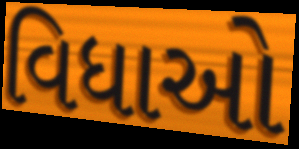
વિધાઓ